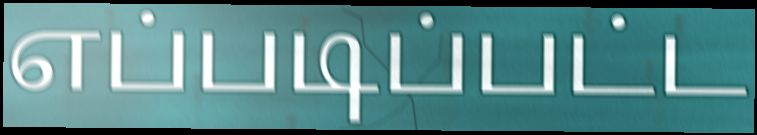
எப்படிப்பட்ட